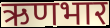
ऋणभार